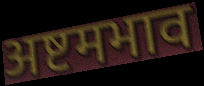
अष्टमभाव